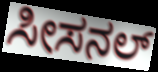
ಸೀಸನಲ್